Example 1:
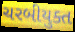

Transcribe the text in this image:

ચરબીયુક્ત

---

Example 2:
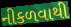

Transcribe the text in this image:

નીકળવાથી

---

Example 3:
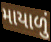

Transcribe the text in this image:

માયાળું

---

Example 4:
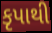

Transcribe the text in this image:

કૃપાથી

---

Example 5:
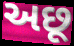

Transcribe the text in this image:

અછૂ